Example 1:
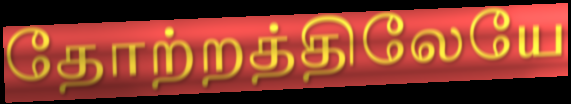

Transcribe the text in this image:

தோற்றத்திலேயே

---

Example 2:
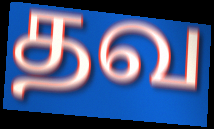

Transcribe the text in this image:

தவ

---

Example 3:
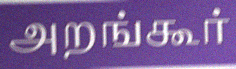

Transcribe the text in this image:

அறங்கூர்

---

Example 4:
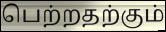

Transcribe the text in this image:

பெற்றதற்கும்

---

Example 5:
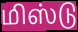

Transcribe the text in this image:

மிஸ்டு